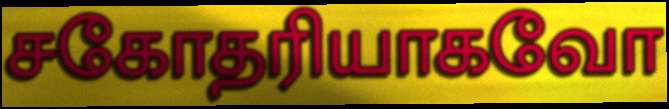
சகோதரியாகவோ